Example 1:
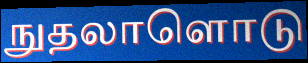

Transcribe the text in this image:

நுதலாளொடு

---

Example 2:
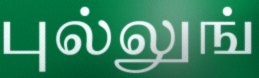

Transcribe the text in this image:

புல்லுங்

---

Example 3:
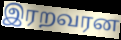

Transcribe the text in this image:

இரறவரன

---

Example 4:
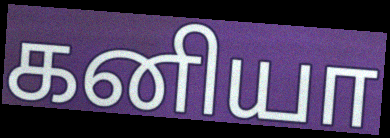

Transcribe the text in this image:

கனியா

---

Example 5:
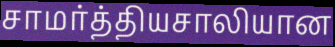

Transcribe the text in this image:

சாமர்த்தியசாலியான